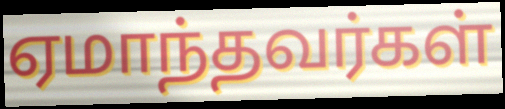
ஏமாந்தவர்கள்